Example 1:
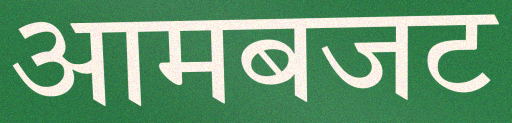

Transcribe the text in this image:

आमबजट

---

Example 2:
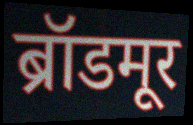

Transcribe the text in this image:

ब्रॉडमूर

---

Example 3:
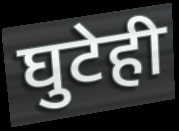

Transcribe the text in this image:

घुटेही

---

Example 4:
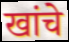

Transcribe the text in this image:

खांचे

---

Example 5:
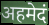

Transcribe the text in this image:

अहमेदं